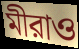
মীরাও